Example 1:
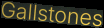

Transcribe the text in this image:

Gallstones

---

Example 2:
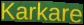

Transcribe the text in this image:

Karkare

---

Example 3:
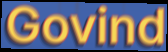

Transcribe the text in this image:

Govind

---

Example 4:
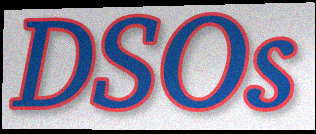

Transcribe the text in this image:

DSOs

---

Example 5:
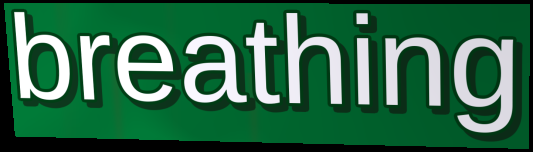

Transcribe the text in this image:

breathing